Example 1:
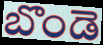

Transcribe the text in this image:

బొండె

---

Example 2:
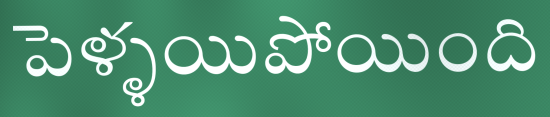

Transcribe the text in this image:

పెళ్ళయిపోయింది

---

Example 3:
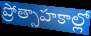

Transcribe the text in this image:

ప్రోత్సాహకాల్లో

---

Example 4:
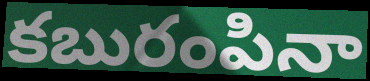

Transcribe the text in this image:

కబురంపినా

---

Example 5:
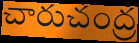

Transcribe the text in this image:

చారుచంద్ర